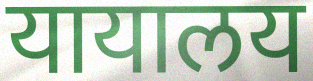
यायालय